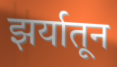
झर्यातून